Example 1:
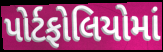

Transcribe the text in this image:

પોર્ટફોલિયોમાં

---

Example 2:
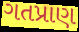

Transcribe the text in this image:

ગતપ્રાણ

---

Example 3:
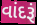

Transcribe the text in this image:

વાંદરૂં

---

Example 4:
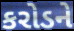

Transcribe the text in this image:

કરોડને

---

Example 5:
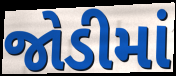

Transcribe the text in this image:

જોડીમાં